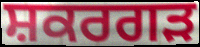
ਸ਼ਕਰਗੜ